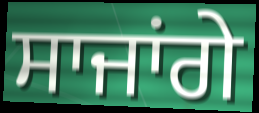
ਸਾਜਾਂਗੇ